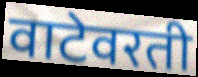
वाटेवरती